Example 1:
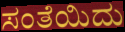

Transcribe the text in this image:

ಸಂತೆಯಿದು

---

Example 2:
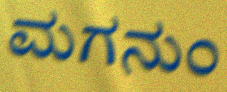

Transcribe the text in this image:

ಮಗನುಂ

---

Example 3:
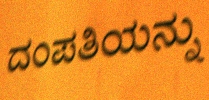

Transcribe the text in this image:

ದಂಪತಿಯನ್ನು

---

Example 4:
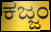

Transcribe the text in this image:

ಕಜ್ಜಂ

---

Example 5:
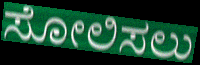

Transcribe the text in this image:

ಸೋಲಿಸಲು